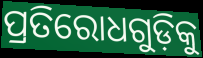
ପ୍ରତିରୋଧଗୁଡ଼ିକୁ